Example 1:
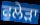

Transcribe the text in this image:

ਫੁਲੇੜਾ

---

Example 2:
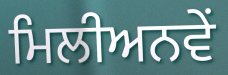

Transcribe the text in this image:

ਮਿਲੀਅਨਵੇਂ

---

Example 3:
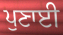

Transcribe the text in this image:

ਪੁਣਾਈ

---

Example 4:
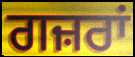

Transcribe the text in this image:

ਗਜ਼ਰਾਂ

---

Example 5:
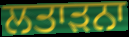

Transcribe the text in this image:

ਲਤਾੜਨਾ